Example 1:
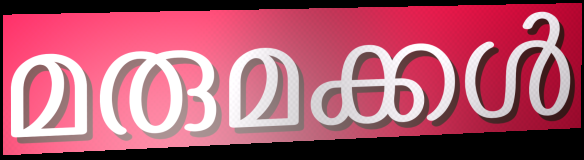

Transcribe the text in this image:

മരുമക്കൾ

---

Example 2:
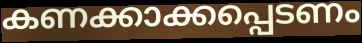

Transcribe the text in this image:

കണക്കാക്കപ്പെടണം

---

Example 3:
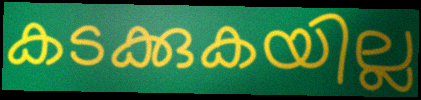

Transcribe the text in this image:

കടക്കുകയില്ല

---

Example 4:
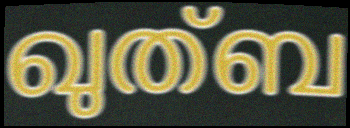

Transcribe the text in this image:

ഖുത്ബ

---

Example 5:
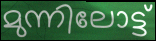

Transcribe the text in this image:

മുന്നിലോട്ട്